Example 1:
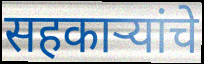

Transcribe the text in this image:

सहकार्‍यांचे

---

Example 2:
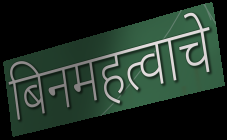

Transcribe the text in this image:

बिनमहत्वाचे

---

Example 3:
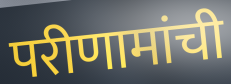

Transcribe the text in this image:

परीणामांची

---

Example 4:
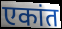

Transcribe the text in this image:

एकांत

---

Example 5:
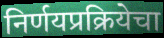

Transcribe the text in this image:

निर्णयप्रक्रियेचा